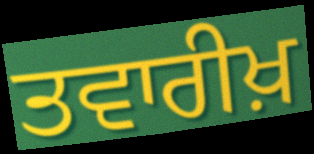
ਤਵਾਰੀਖ਼